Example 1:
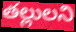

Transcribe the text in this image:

తల్లులని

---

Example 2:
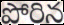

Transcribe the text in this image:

పోరిన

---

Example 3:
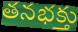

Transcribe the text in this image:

తనభక్తు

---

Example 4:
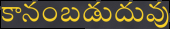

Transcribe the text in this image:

కానంబడుదువు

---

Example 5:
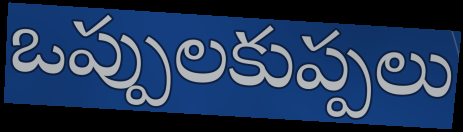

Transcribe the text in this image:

ఒప్పులకుప్పలు